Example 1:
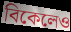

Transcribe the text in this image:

বিকেলেও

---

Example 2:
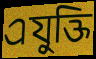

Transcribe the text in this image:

এযুক্তি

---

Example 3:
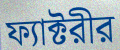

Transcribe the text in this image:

ফ্যাক্টরীর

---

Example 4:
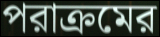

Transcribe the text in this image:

পরাক্রমের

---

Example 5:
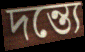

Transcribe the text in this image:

দন্ত্যে